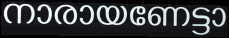
നാരായണേട്ടാ